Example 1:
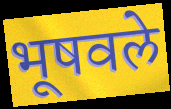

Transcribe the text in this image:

भूषवले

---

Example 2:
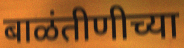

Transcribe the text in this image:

बाळंतीणीच्या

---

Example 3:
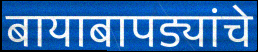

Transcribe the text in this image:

बायाबापड्यांचे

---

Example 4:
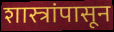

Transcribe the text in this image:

शास्त्रांपासून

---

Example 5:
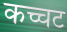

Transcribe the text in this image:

कच्चट